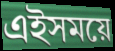
এইসময়ে